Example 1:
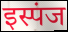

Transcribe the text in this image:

इस्पंज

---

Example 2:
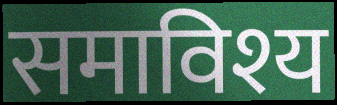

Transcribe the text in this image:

समाविश्य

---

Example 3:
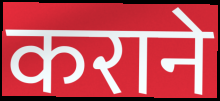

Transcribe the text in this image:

कराने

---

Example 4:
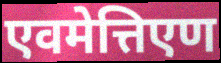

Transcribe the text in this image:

एवमेत्तिएण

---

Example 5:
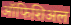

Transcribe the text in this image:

ऑफिशिअल